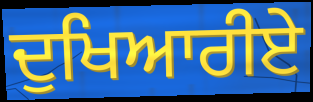
ਦੁਖਿਆਰੀਏ